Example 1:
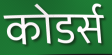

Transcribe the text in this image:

कोडर्स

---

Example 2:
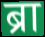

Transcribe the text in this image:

ब्रा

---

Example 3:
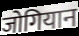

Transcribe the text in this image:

जोगियान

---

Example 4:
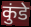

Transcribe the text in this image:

कुंडे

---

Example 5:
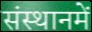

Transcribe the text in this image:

संस्थानमें